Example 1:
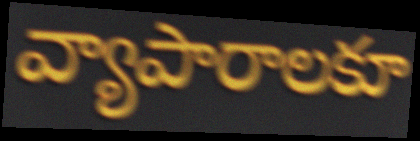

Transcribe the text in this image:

వ్యాపారాలకూ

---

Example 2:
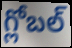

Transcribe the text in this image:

గ్లోబల్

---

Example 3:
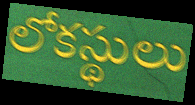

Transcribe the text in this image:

లోకస్థులు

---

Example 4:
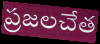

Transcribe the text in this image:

ప్రజలచేత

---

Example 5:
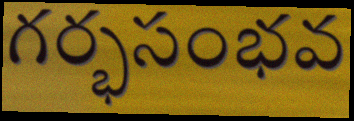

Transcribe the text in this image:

గర్భసంభవ